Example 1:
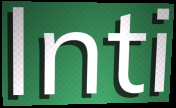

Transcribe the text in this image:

Inti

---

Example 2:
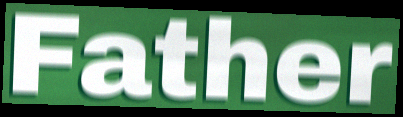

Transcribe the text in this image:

Father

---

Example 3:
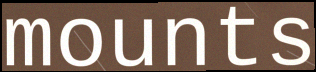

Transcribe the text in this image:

mounts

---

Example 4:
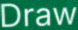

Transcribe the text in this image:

Draw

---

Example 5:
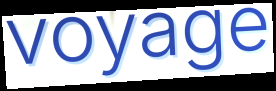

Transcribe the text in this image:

voyage